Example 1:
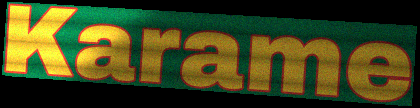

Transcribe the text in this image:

Karame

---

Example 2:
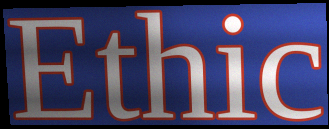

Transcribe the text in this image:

Ethic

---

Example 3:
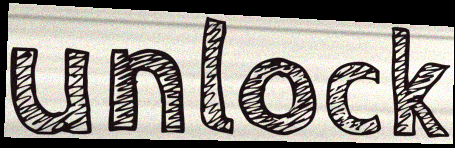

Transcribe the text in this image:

unlock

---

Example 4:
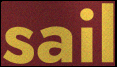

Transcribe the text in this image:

sail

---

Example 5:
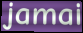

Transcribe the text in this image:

jamai